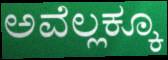
ಅವೆಲ್ಲಕ್ಕೂ